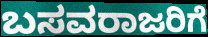
ಬಸವರಾಜರಿಗೆ